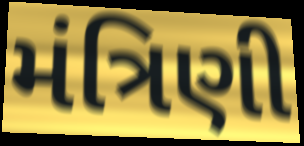
મંત્રિણી